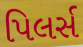
પિલર્સ